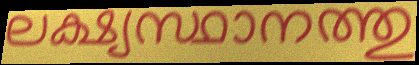
ലക്ഷ്യസ്ഥാനത്തു